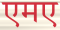
एमए